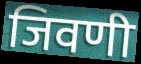
जिवणी